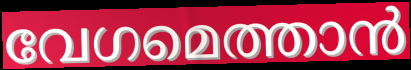
വേഗമെത്താൻ